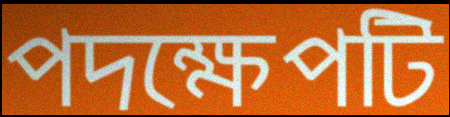
পদক্ষেপটি